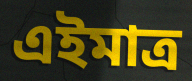
এইমাত্ৰ